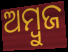
ଅମ୍ୱୁଜ